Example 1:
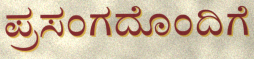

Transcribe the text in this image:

ಪ್ರಸಂಗದೊಂದಿಗೆ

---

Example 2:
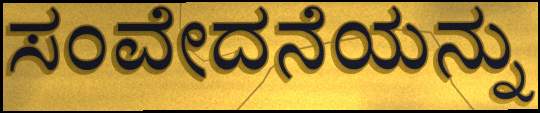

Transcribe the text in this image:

ಸಂವೇದನೆಯನ್ನು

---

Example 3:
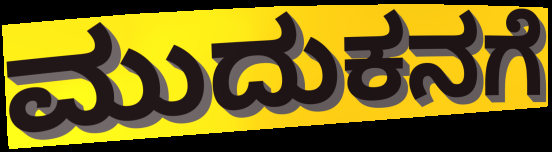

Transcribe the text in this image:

ಮುದುಕನಗೆ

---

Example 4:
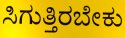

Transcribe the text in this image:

ಸಿಗುತ್ತಿರಬೇಕು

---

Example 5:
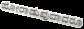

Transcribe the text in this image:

ಹೋರಾಡುವುದಾದರೂ